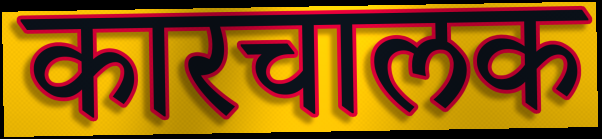
कारचालक